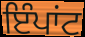
ਇੰਪਾਂਟ